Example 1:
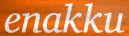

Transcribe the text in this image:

enakku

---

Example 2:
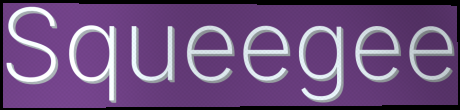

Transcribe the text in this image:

Squeegee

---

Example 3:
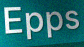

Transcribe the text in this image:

Epps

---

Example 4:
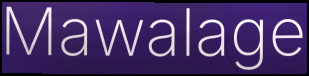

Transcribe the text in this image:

Mawalage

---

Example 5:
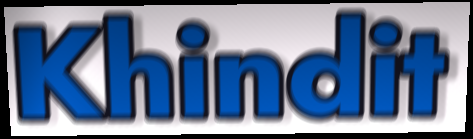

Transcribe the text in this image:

Khindit